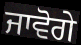
ਜਾਵੋਗੇ